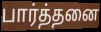
பார்த்தனை